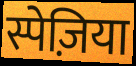
स्पेज़िया